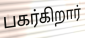
பகர்கிறார்